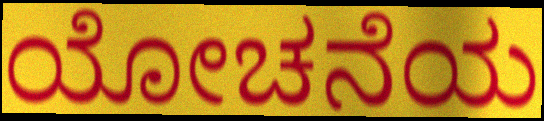
ಯೋಚನೆಯ